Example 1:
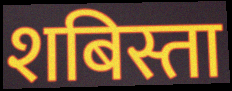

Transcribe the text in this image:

शबिस्ता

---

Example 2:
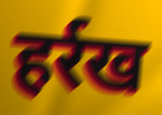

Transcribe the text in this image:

हर्रख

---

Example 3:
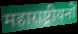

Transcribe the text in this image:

महाराष्ट्रीयनों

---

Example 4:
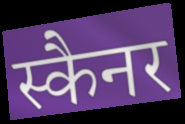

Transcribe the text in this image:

स्कैनर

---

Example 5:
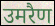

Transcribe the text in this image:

उमरैण